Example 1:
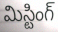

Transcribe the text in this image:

మిస్టింగ్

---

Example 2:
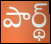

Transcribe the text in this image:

పార్థ్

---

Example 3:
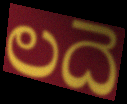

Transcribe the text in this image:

లదె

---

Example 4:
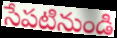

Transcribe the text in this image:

సేపటినుండి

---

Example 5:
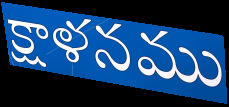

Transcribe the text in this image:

క్షాళనము